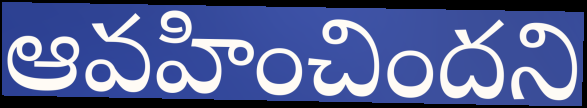
ఆవహించిందని